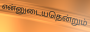
என்னுடையதென்றும்